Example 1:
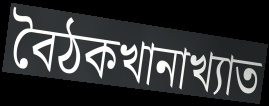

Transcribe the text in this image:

বৈঠকখানাখ্যাত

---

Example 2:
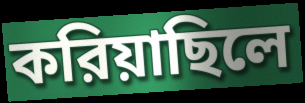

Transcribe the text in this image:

করিয়াছিলে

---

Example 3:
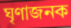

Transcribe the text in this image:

ঘৃণাজনক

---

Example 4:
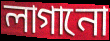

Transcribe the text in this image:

লাগানো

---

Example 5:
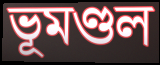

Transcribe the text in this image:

ভূমণ্ডল